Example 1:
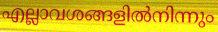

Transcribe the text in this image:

എല്ലാവശങ്ങളിൽനിന്നും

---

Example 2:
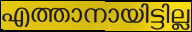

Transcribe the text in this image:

എത്താനായിട്ടില്ല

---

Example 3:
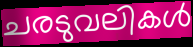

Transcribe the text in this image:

ചരടുവലികൾ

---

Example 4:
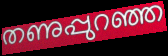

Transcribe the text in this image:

തണുപ്പുറഞ്ഞ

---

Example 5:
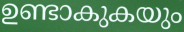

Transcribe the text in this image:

ഉണ്ടാകുകയും